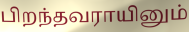
பிறந்தவராயினும்